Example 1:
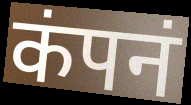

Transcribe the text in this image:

कंपनं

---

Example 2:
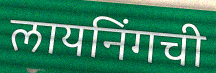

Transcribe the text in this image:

लायनिंगची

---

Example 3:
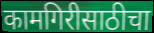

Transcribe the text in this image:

कामगिरीसाठीचा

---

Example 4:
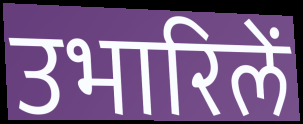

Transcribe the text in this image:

उभारिलें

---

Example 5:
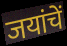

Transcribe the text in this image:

जयांचें